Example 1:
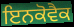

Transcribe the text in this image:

ਇਨਕੋਵੈਕ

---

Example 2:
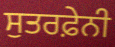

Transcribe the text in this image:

ਸੁਤਰਫ਼ੇਨੀ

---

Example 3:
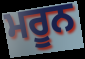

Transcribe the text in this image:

ਮਰੂਨ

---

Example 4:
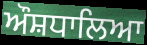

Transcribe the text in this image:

ਔਸ਼ਧਾਲਿਆ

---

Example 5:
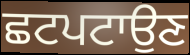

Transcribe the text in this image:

ਛਟਪਟਾਉਣ